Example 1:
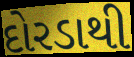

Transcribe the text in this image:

દોરડાથી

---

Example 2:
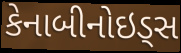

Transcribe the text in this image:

કેનાબીનોઇડ્સ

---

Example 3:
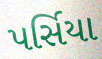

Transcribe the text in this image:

પર્સિયા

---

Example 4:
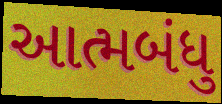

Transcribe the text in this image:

આત્મબંધુ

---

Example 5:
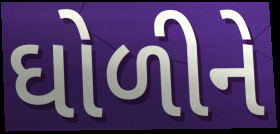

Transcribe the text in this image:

ઘોળીને